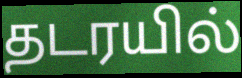
தடரயில்